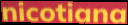
nicotiana